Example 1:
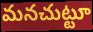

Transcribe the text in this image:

మనచుట్టూ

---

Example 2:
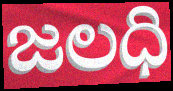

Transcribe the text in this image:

జలధి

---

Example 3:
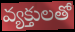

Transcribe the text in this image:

వ్యక్తులతో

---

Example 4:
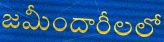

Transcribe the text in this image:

జమీందారీలలో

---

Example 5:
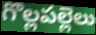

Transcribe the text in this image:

గొల్లపల్లెలు